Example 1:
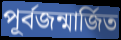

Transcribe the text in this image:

পূৰ্বজন্মাৰ্জিত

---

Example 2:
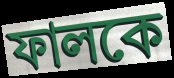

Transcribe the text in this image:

ফালকে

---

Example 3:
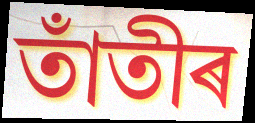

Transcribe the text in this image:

তাঁতীৰ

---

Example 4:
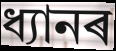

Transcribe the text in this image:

ধ্যানৰ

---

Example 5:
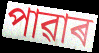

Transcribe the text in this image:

পাৱাৰ